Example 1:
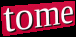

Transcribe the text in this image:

tome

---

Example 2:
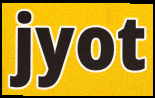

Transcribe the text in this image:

jyot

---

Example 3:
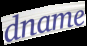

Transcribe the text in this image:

dname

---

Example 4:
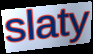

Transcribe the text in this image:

slaty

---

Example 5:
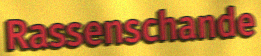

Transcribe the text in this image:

Rassenschande